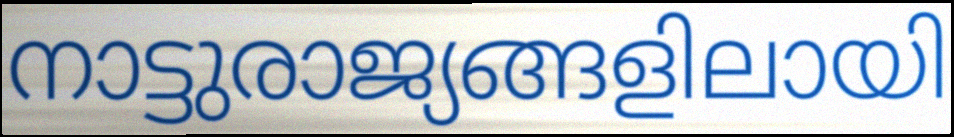
നാട്ടുരാജ്യങ്ങളിലായി